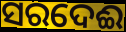
ସରଦେଈ